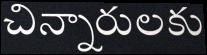
చిన్నారులకు